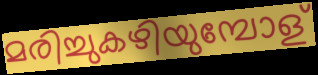
മരിച്ചുകഴിയുമ്പോള്